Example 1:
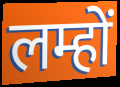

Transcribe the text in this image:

लम्हों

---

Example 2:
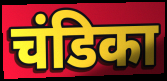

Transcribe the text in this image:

चंडिका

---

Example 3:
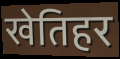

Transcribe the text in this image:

खेतिहर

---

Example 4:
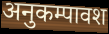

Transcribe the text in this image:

अनुकम्पावश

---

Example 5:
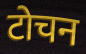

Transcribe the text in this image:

टोचन